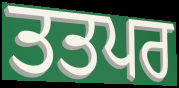
ਤਤਪਰ